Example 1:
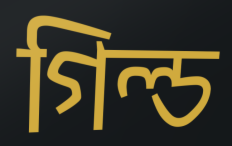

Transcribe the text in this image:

গিল্ড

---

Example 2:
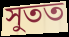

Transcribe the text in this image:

সুতত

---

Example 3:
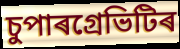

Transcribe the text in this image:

চুপাৰগ্ৰেভিটিৰ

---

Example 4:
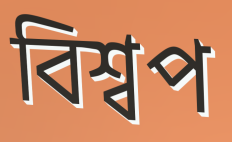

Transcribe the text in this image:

বিশ্বপ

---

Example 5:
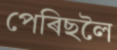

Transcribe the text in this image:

পেৰিছলৈ